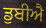
ਡੁਬੀਐ